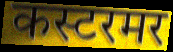
कस्टरमर